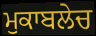
ਮੁਕਾਬਲੇਚ